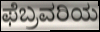
ಫೆಬ್ರವರಿಯ